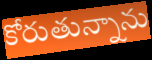
కోరుతున్నాను